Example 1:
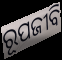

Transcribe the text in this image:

ରୂପଜୀବି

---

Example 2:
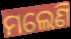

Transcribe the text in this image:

ମଲେଣି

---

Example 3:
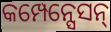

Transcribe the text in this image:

କମ୍ପେନ୍ସେସନ୍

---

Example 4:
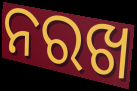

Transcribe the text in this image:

ନରଖ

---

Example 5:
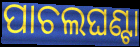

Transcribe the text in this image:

ପାଚଲଘଣ୍ଟା